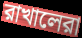
রাখালেরা